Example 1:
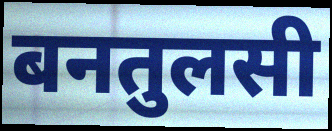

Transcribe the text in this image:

बनतुलसी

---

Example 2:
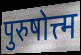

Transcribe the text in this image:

पुरुषोत्त्म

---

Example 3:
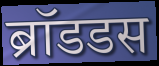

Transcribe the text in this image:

ब्रॉडडस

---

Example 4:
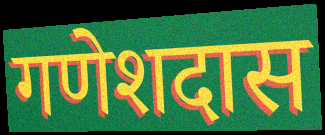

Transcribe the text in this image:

गणेशदास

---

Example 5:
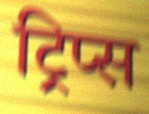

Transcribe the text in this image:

ट्रिप्स